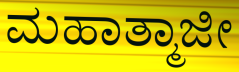
ಮಹಾತ್ಮಾಜೀ